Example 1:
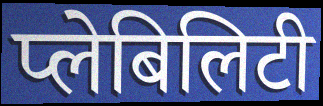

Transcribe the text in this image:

प्लेबिलिटी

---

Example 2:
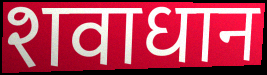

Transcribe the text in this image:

शवाधान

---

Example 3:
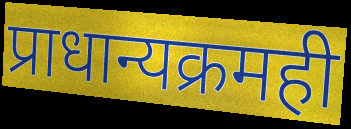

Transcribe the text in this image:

प्राधान्यक्रमही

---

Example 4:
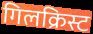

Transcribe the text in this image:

गिलक्रिस्‍ट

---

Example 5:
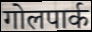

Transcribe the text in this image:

गोलपार्क